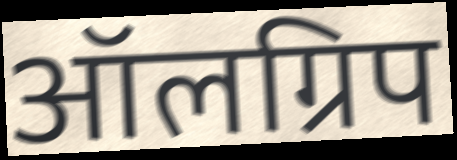
ऑलग्रिप